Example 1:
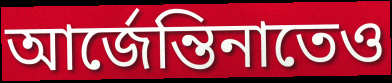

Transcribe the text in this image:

আর্জেন্তিনাতেও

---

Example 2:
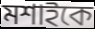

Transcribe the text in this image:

মশাইকে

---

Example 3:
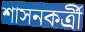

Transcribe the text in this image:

শাসনকর্ত্রী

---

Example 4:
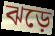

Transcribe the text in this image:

ঝড়ে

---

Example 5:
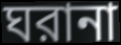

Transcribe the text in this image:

ঘরানা